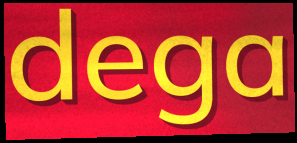
dega